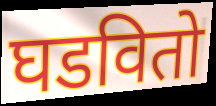
घडवितो